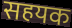
सहयक